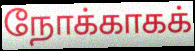
நோக்காகக்